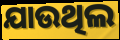
ଯାଉଥିଲ